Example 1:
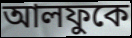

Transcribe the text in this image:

আলফুকে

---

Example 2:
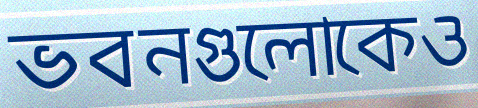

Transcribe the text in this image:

ভবনগুলোকেও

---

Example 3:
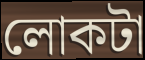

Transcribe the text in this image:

লোকটা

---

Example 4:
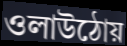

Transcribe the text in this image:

ওলাউঠোয়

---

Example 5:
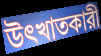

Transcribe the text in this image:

উৎখাতকারী